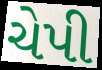
ચેપી